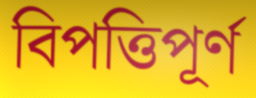
বিপত্তিপূর্ণ